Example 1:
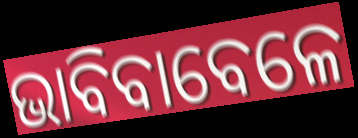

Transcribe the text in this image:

ଭାବିବାବେଳେ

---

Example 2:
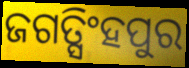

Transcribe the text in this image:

ଜଗତ୍ସିଂହପୁର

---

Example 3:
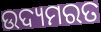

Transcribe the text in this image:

ଉଦ୍ୟମରତ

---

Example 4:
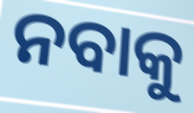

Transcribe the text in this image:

ନବାକୁ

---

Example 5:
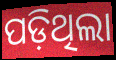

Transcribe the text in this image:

ପଡ଼ିଥିଲା